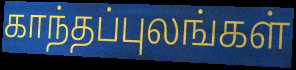
காந்தப்புலங்கள்